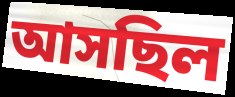
আসছিল